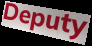
Deputy